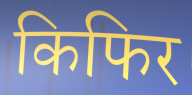
किफिर